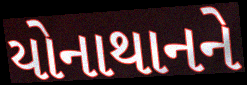
યોનાથાનને